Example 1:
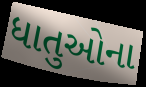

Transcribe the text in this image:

ધાતુઓના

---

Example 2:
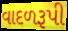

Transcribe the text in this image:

વાદળરૂપી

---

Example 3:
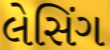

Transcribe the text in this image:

લેસિંગ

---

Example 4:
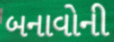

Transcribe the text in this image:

બનાવોની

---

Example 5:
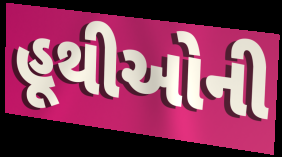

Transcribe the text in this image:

હૂથીઓની